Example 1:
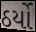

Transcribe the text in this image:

ઠર્યો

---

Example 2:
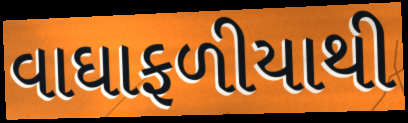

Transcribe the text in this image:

વાઘાફળીયાથી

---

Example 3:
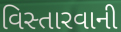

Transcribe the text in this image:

વિસ્તારવાની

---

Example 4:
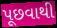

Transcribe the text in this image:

પૂછવાથી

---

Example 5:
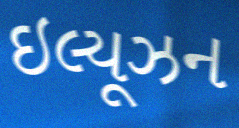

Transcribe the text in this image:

ઇલ્યૂઝન